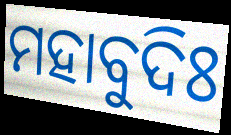
ମହାବୁଦିଃ